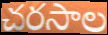
చరసాల